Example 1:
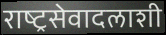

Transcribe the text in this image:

राष्ट्रसेवादलाशी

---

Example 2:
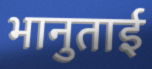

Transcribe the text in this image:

भानुताई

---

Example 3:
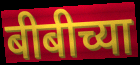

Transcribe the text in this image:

बीबीच्या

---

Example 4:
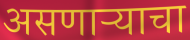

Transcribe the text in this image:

असणाऱ्याचा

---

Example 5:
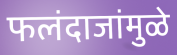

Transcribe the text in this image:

फलंदाजांमुळे